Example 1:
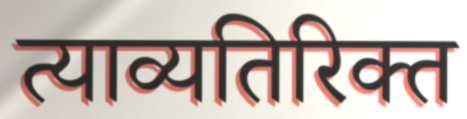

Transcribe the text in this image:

त्याव्यतिरिक्त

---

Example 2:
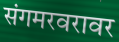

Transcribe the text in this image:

संगमरवरावर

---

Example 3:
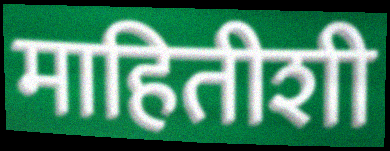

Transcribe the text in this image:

माहितीशी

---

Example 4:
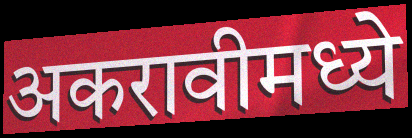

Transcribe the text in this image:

अकरावीमध्ये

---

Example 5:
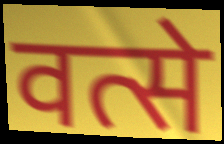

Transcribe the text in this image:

वत्से